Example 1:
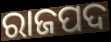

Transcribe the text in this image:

ରାଜପଦ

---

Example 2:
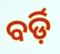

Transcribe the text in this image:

ବର୍ଡ଼ି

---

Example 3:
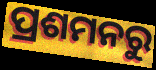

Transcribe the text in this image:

ପ୍ରଶମନରୁ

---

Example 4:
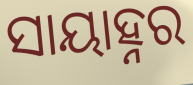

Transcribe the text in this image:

ସାୟାହ୍ନର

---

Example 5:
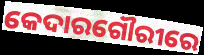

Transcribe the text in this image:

କେଦାରଗୌରୀରେ